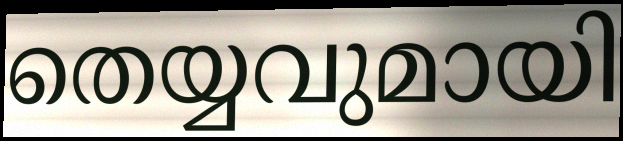
തെയ്യവുമായി